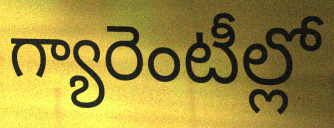
గ్యారెంటీల్లో